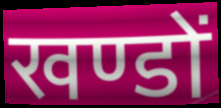
खण्डों